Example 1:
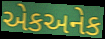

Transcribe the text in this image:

એકઅનેક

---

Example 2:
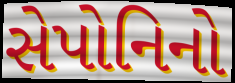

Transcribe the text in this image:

સેપોનિનો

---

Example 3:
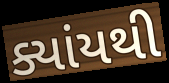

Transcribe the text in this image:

ક્યાંયથી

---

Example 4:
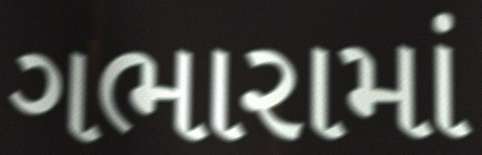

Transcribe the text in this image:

ગભારામાં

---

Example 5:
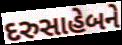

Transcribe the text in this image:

દરુસાહેબને